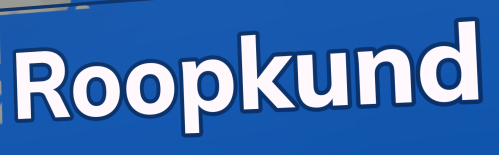
Roopkund